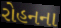
રોહનના